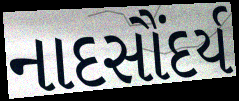
નાદસૌંદર્ય